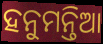
ହନୁମନ୍ତିଆ